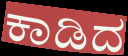
ಕಾಡಿದ